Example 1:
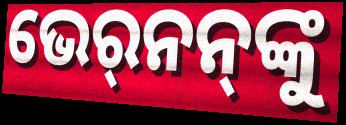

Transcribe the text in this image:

ଭେର୍‍ନନ୍‌ଙ୍କୁ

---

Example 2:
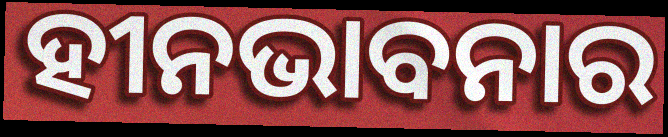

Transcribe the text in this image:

ହୀନଭାବନାର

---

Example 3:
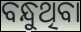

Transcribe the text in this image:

ବନ୍ଧୁଥିବା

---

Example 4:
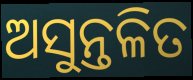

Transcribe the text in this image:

ଅସୁନ୍ତଳିତ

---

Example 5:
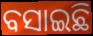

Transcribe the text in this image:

ବସାଇଛି